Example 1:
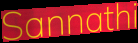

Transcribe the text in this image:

Sannathi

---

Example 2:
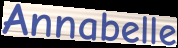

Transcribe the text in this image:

Annabelle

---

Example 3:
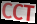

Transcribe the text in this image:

CCT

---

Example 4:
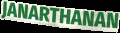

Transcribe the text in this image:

JANARTHANAN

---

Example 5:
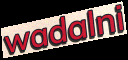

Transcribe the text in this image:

wadalni